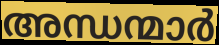
അന്ധന്മാർ